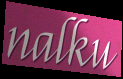
nalku